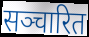
सञ्चारित